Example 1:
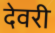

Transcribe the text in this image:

देवरी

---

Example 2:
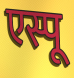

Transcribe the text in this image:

एस्पू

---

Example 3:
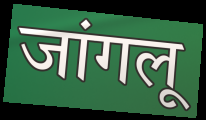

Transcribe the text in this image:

जांगलू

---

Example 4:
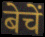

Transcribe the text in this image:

बेचें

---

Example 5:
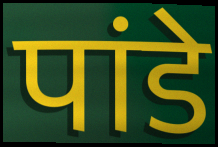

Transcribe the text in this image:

पांडे